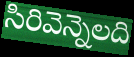
సిరివెన్నెలది